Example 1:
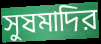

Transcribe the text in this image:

সুষমাদির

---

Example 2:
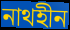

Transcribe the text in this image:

নাথহীন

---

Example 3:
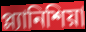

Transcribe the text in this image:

প্ল্যানিশিয়া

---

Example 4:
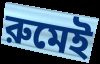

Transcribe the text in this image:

রুমেই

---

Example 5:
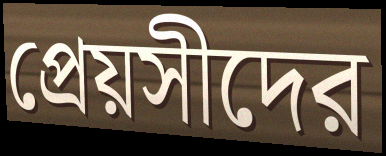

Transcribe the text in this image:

প্রেয়সীদের